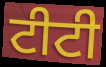
ਟੀਟੀ